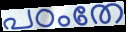
പഠംതേ